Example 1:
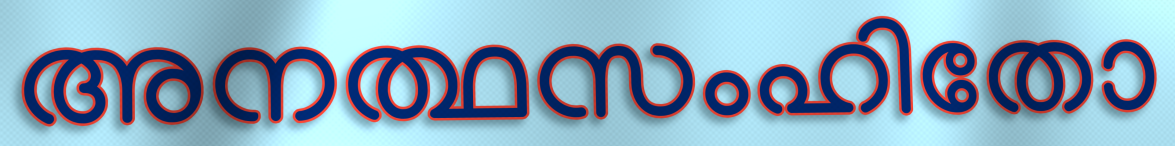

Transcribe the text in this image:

അനത്ഥസംഹിതോ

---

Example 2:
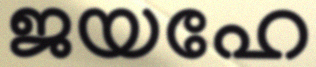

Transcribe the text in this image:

ജയഹേ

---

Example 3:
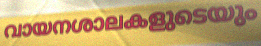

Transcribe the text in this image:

വായനശാലകളുടെയും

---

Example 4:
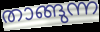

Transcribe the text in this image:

താങ്ങുന്ന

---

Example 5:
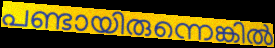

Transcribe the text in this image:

പണ്ടായിരുന്നെങ്കിൽ